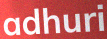
adhuri